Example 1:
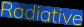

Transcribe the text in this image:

Radiative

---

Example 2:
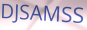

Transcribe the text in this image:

DJSAMSS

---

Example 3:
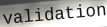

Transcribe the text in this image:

validation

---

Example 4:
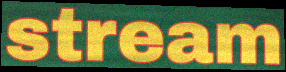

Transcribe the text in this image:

stream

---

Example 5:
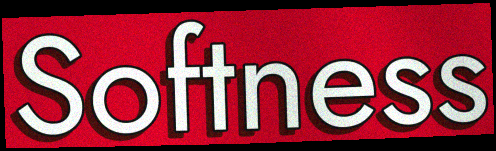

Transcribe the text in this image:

Softness